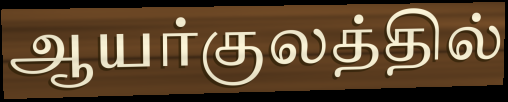
ஆயர்குலத்தில்